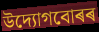
উদ্যোগবোৰৰ